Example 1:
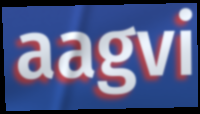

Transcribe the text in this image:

aagvi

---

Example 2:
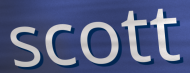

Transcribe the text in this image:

scott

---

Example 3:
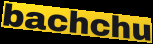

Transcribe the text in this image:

bachchu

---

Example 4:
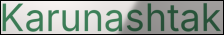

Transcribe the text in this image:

Karunashtak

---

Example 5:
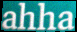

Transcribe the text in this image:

ahha